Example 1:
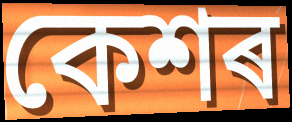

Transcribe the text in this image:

কেশৰ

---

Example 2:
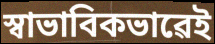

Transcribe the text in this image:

স্বাভাবিকভাৱেই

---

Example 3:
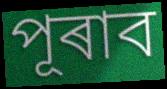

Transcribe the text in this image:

পূৰাব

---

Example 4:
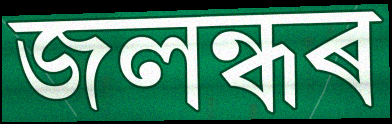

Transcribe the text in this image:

জলন্ধৰ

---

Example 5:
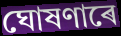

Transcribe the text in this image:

ঘোষণাৰে